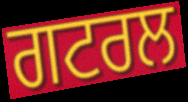
ਗਟਰਲ